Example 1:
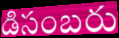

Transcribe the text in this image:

డిసంబరు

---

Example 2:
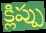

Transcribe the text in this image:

క్లిప్పు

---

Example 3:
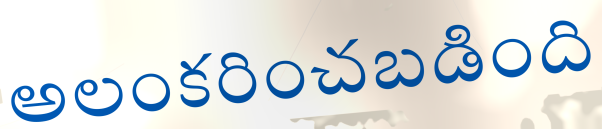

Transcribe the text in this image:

అలంకరించబడింది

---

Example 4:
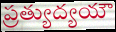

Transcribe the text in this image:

ప్రత్యుద్యయౌ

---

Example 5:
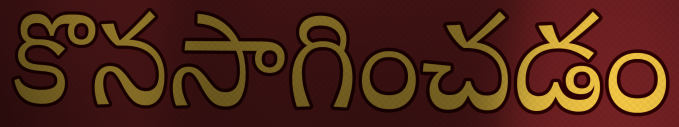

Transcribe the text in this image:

కొనసాగించడం